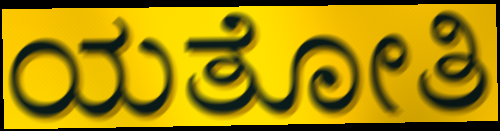
ಯತೋತಿ